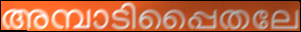
അമ്പാടിപ്പൈതലേ